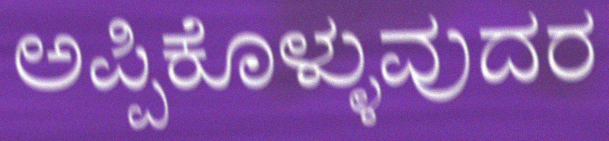
ಅಪ್ಪಿಕೊಳ್ಳುವುದರ